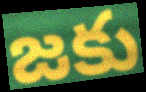
జకు